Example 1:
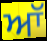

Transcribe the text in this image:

ਆੱ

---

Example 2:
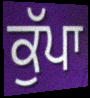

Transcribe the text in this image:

ਕੁੱਪਾ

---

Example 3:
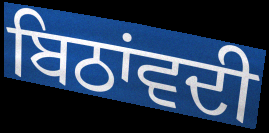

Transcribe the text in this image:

ਬਿਠਾਂਵਦੀ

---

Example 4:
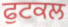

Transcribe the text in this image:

ਫੁਟਕਲ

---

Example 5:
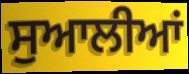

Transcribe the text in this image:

ਸੁਆਲੀਆਂ